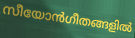
സീയോൻഗീതങ്ങളിൽ